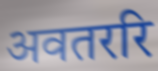
अवतररि